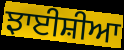
ਝਾਈਸ਼ੀਆ